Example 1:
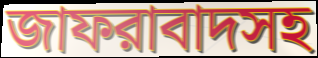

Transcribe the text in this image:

জাফরাবাদসহ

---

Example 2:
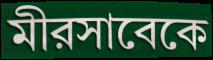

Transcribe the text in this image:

মীরসাবেকে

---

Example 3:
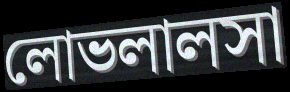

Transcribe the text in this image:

লোভলালসা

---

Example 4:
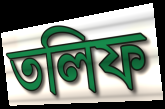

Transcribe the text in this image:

তলিফ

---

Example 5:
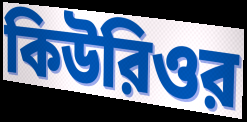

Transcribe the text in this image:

কিউরিওর